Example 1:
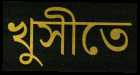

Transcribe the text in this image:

খুসীতে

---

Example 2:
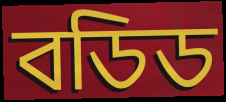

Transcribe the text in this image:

বডিড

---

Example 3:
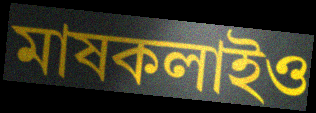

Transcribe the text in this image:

মাষকলাইও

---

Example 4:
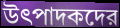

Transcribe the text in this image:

উৎপাদকদের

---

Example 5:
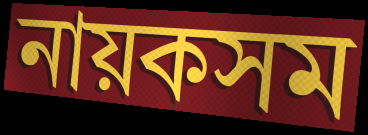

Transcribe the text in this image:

নায়কসম